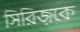
সিরিজ়কে